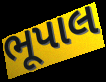
ભૂપાલ